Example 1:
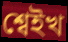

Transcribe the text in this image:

শ্বেইখ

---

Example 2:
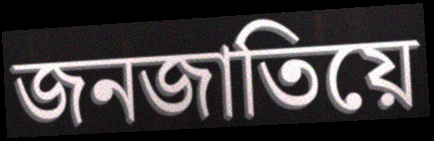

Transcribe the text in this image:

জনজাতিয়ে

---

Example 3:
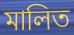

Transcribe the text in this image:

মালিত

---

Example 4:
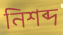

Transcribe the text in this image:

নিশব্দ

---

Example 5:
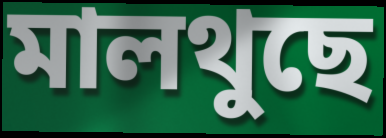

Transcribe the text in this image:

মালথুছে